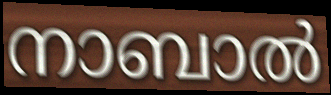
നാബാൽ